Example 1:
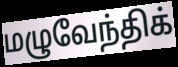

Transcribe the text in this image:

மழுவேந்திக்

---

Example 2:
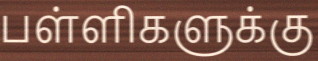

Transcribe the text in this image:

பள்ளிகளுக்கு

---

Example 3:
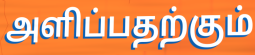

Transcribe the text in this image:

அளிப்பதற்கும்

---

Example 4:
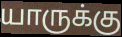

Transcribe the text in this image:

யாருக்கு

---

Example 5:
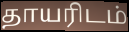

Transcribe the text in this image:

தாயரிடம்